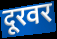
दूरवर